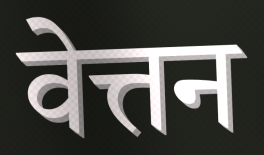
वेत्तन